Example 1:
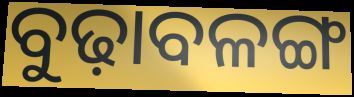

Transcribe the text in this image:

ବୁଢ଼ାବଳଙ୍ଗ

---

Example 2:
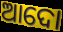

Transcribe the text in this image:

ଆଦୋ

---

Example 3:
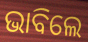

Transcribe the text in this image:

ଭାବିଲେ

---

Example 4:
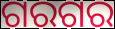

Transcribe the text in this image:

ଗରଗର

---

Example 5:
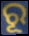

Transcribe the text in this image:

ରୂ